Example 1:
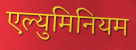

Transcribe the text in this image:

एल्युमिनियम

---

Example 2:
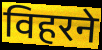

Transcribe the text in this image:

विहरने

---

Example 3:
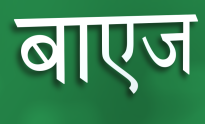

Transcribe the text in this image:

बाएज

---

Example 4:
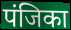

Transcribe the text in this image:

पंजिका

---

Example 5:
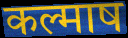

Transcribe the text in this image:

कल्माष